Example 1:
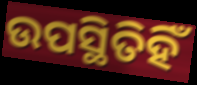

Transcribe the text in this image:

ଉପସ୍ଥିତିହିଁ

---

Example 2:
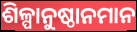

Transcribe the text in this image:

ଶିଳ୍ପାନୁଷ୍ଠାନମାନ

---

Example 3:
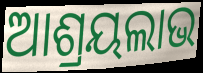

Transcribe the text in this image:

ଆଶ୍ରୟଲାଭ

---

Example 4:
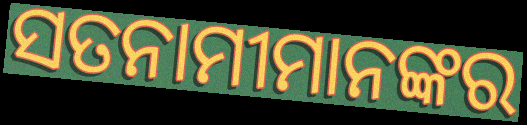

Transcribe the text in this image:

ସତନାମୀମାନଙ୍କର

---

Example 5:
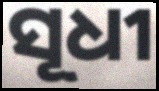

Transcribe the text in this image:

ସୂଧୀ